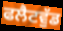
ਫਲੈਟਵੁੱਡ